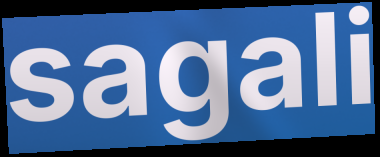
sagali